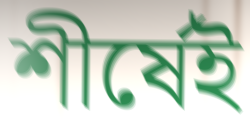
শীর্ষেই